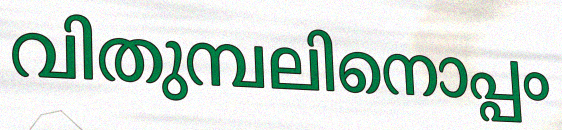
വിതുമ്പലിനൊപ്പം